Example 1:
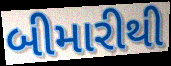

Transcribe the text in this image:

બીમારીથી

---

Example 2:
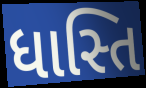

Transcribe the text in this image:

ધાસ્તિ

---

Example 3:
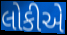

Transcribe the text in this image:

લોકીએ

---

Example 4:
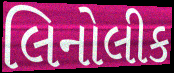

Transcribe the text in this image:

લિનોલીક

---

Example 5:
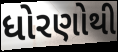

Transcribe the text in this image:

ધોરણોથી